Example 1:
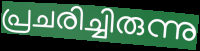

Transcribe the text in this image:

പ്രചരിച്ചിരുന്നു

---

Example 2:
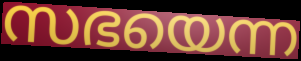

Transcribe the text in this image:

സഭയെന്ന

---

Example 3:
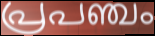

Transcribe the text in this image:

പ്രപഞ്ചം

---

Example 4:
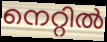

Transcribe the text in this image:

നെറ്റിൽ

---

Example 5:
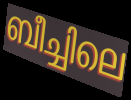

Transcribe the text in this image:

ബീച്ചിലെ